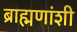
ब्राह्मणांशी